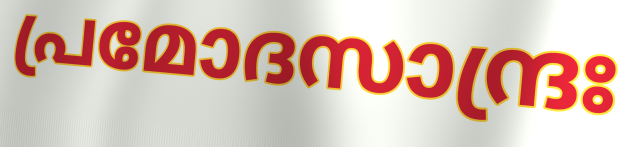
പ്രമോദസാന്ദ്രഃ